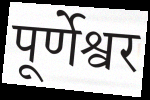
पूर्णेश्वर